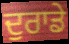
ਦੁਰਾਡੇ